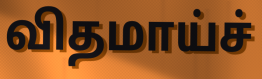
விதமாய்ச்